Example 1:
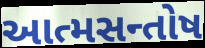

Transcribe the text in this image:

આત્મસન્તોષ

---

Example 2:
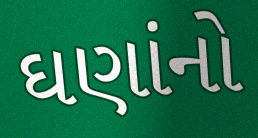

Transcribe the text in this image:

ઘણાંનો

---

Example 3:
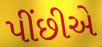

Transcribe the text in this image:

પીંછીએ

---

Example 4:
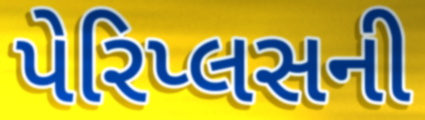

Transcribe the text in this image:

પેરિપ્લસની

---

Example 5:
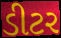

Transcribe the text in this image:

ડીટર